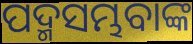
ପଦ୍ମସମ୍ଭବାଙ୍କ